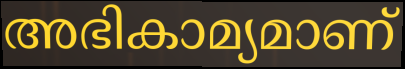
അഭികാമ്യമാണ്